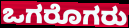
ಒಗರೊಗರು